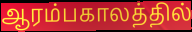
ஆரம்பகாலத்தில்